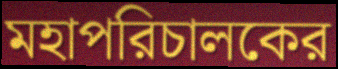
মহাপরিচালকের